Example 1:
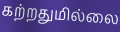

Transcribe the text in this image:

கற்றதுமில்லை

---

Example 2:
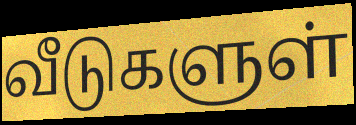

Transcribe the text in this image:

வீடுகளுள்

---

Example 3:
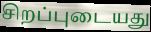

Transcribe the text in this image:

சிறப்புடையது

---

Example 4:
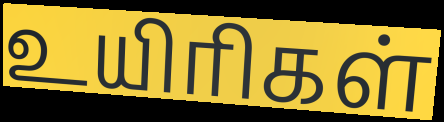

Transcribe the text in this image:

உயிரிகள்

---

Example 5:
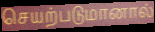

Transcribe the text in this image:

செயற்படுமானால்